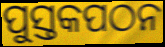
ପୁସ୍ତକପଠନ